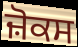
ਜ਼ੋਕਸ